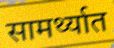
सामर्थ्यात